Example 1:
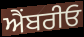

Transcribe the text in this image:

ਐਂਬਰੀਓ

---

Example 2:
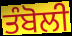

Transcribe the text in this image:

ਤੰਬੋਲੀ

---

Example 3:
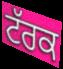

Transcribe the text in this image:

ਟੱਰਕ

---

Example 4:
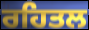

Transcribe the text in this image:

ਰਹਿਤਲ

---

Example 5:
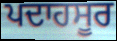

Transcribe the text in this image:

ਪਦਾਹਸੂਰ